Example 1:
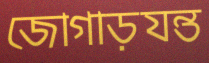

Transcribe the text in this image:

জোগাড়যন্ত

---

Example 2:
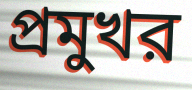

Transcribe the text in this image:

প্রমুখর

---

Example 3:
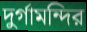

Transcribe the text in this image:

দুর্গামন্দির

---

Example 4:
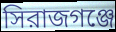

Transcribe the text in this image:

সিরাজগঞ্জে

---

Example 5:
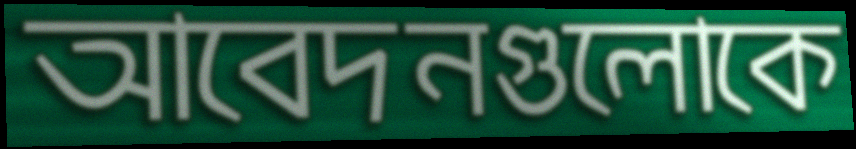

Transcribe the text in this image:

আবেদনগুলোকে